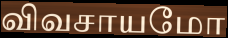
விவசாயமோ